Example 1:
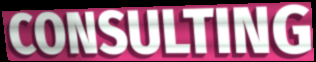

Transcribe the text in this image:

CONSULTING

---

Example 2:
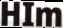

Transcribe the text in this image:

HIm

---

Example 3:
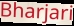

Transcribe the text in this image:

Bharjari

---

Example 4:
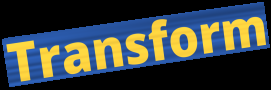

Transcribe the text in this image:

Transform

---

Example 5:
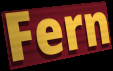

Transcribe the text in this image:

Fern